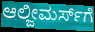
ಆಲ್ಜೀಮರ್ಸ್‌ಗೆ